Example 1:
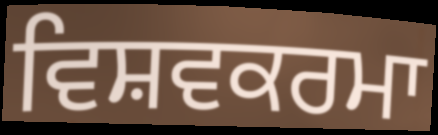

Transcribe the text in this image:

ਵਿਸ਼ਵਕਰਮਾ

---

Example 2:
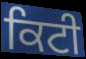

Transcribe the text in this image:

ਕਿਟੀ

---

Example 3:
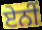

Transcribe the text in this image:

ਏਨੀਂ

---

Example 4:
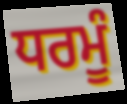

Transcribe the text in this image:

ਧਰਮੂੰ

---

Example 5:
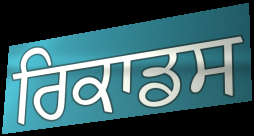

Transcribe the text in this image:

ਰਿਕਾਡਸ